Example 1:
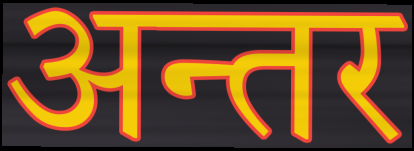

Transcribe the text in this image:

अन्तर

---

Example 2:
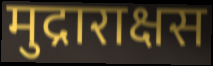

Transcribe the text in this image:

मुद्राराक्षस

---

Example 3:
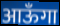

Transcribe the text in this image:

आऊँगा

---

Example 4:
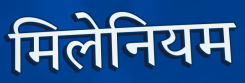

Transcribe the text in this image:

मिलेनियम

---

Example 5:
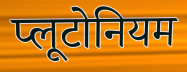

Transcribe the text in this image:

प्लूटोनियम